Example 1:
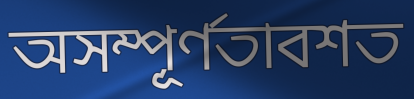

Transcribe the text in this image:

অসম্পূর্ণতাবশত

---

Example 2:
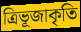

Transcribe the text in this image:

ত্রিভূজাকৃতি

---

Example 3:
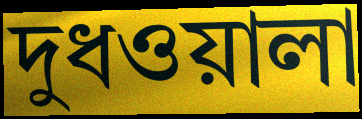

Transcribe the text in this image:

দুধওয়ালা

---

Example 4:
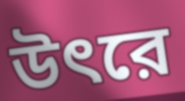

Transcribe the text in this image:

উৎরে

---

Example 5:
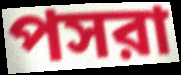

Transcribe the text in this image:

পসরা